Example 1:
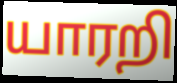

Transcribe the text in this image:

யாரறி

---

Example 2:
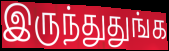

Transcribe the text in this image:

இருந்துதுங்க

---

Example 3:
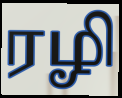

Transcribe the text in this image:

ரழி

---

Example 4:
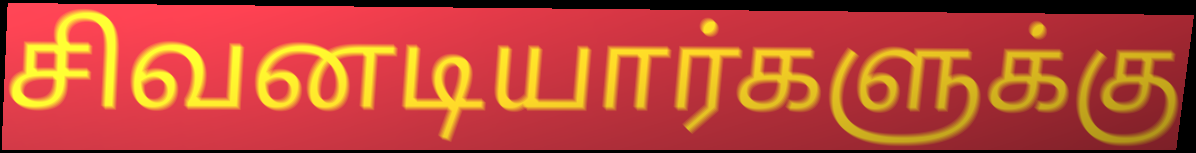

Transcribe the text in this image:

சிவனடியார்களுக்கு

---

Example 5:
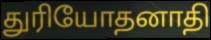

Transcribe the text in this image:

துரியோதனாதி